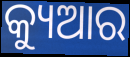
କ୍ୟୁଆର